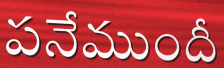
పనేముందీ